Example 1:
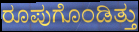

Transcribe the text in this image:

ರೂಪುಗೊಂಡಿತ್ತು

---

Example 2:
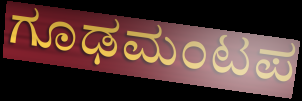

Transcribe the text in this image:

ಗೂಢಮಂಟಪ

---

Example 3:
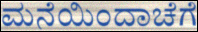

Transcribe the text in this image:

ಮನೆಯಿಂದಾಚೆಗೆ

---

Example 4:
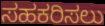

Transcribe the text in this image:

ಸಹಕರಿಸಲು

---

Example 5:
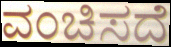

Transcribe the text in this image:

ವಂಚಿಸದೆ